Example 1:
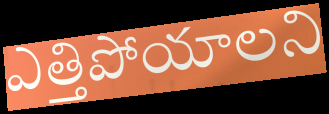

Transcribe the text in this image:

ఎత్తిపోయాలని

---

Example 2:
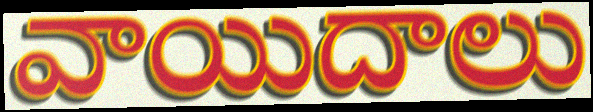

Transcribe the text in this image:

వాయిదాలు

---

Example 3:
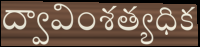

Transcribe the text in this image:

ద్వావింశత్యధిక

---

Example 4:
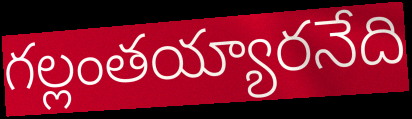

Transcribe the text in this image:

గల్లంతయ్యారనేది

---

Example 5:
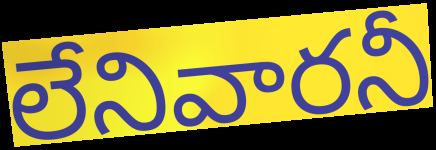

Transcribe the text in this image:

లేనివారనీ